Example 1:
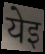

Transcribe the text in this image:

येइ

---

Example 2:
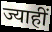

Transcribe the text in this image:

ज्याहीं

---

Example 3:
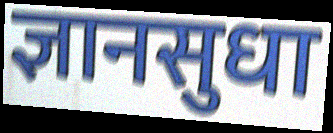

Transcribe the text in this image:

ज्ञानसुधा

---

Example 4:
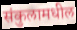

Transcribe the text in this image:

संकुलामधील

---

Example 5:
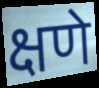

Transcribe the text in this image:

क्षणे